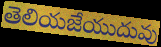
తెలియజేయుదువు